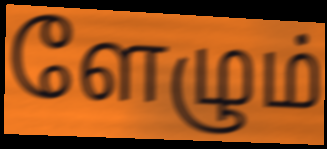
ளேழும்